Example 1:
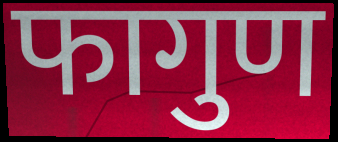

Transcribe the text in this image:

फागुण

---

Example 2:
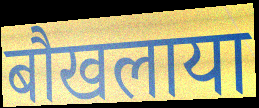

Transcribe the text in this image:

बौखलाया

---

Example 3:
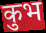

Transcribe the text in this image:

कुभ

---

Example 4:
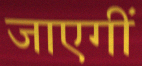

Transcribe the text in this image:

जाएगीं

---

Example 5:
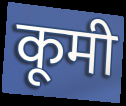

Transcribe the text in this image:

कूमी